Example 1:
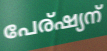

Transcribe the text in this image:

പേര്ഷ്യന്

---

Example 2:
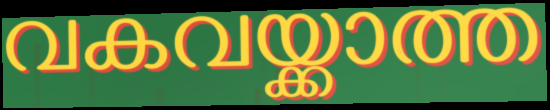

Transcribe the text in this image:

വകവയ്ക്കാത്ത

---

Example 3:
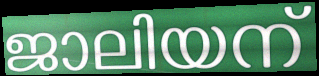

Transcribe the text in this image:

ജാലിയന്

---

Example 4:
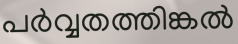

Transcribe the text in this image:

പർവ്വതത്തിങ്കൽ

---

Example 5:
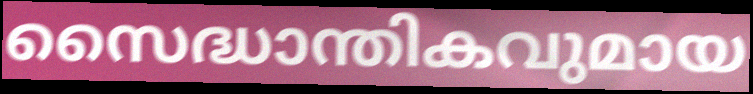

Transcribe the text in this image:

സൈദ്ധാന്തികവുമായ